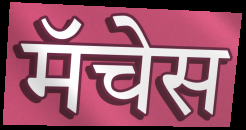
मॅचेस